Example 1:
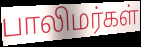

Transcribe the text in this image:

பாலிமர்கள்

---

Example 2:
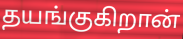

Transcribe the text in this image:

தயங்குகிறான்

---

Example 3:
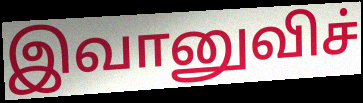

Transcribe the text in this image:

இவானுவிச்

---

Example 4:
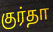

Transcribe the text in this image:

குர்தா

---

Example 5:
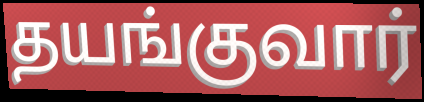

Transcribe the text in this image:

தயங்குவார்